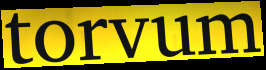
torvum